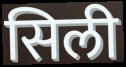
सिली